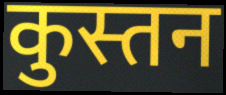
कुस्तन